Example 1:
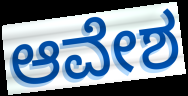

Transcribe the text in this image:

ಆವೇಶ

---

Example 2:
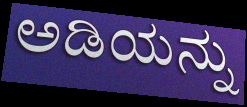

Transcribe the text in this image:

ಅಡಿಯನ್ನು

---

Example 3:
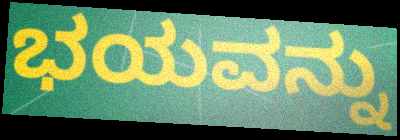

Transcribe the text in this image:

ಭಯವನ್ನು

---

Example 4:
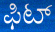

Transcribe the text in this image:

ಫಿಟ್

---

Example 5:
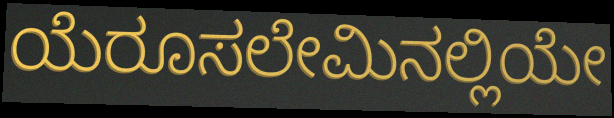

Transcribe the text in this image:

ಯೆರೂಸಲೇಮಿನಲ್ಲಿಯೇ